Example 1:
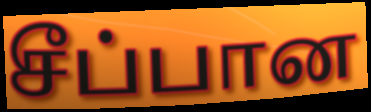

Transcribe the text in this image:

சீப்பான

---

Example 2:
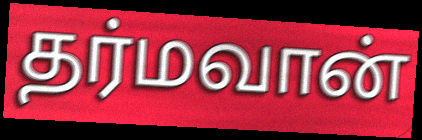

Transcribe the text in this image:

தர்மவான்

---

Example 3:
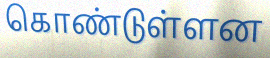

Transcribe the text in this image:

கொண்டுள்ளன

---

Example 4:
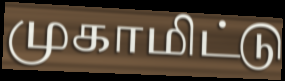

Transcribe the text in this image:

முகாமிட்டு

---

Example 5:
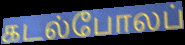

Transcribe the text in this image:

கடல்போலப்